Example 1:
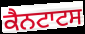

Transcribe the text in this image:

ਕੈਨਟਾਟਸ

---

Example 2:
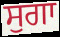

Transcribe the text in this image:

ਸੁਗਾ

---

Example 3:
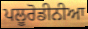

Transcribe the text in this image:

ਪਲੂਰੋਡੀਨੀਆ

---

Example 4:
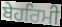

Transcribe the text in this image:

ਬੇਹਰਿਮੀ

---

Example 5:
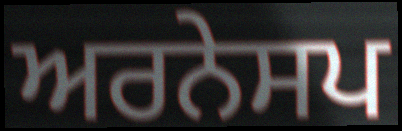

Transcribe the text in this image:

ਅਰਨੇਸਪ